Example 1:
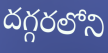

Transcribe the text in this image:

దగ్గరలోని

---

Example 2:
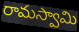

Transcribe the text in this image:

రామస్వామి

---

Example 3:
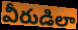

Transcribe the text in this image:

వీరుడిలా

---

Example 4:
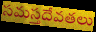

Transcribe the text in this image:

సమస్తదేవతలు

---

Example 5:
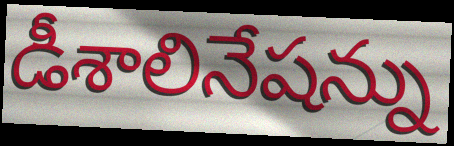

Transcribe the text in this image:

డీశాలినేషన్ను